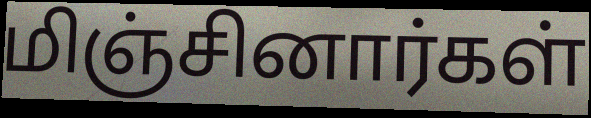
மிஞ்சினார்கள்